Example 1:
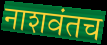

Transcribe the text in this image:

नाशवंतच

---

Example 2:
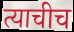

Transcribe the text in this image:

त्याचीच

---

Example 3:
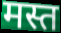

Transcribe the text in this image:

मस्त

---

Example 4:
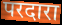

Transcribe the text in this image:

परदारा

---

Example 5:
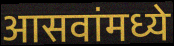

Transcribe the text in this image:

आसवांमध्ये